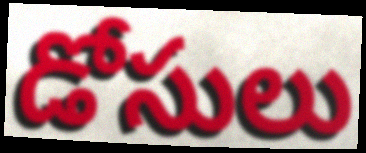
డోసులు